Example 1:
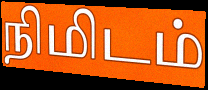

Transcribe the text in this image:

நிமிடம்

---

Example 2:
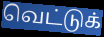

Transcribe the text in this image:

வெட்டுக்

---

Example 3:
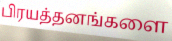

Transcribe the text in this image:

பிரயத்தனங்களை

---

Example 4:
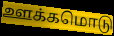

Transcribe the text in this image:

ஊக்கமொடு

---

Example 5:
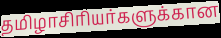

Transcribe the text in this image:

தமிழாசிரியர்களுக்கான